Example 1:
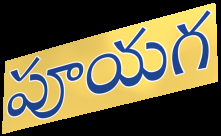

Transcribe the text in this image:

పూయగ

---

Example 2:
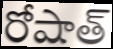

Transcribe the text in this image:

రోషాత్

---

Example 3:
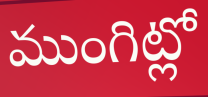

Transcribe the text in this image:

ముంగిట్లో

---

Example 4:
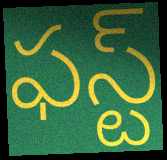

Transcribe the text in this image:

ఫస్ట్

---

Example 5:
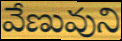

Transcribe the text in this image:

వేణువుని